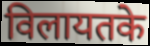
विलायतके